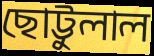
ছোট্টুলাল